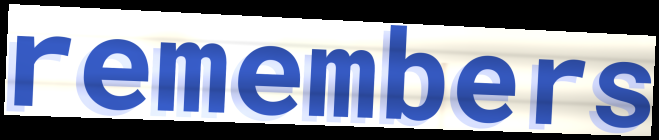
remembers